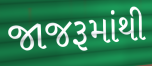
જાજરૂમાંથી